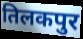
तिलकपुर